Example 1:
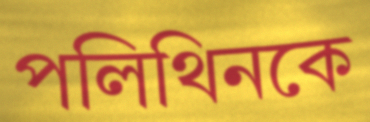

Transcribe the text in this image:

পলিথিনকে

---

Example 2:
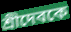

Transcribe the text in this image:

শ্রীদেবকে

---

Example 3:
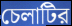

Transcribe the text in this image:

চেলাটির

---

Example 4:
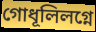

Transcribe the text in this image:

গোধূলিলগ্নে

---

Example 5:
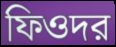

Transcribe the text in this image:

ফিওদর